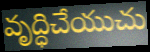
వృద్ధిచేయుచు